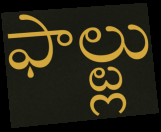
ఫాల్ట్లు